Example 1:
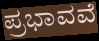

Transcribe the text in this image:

ಪ್ರಭಾವವೆ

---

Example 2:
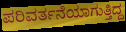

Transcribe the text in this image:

ಪರಿವರ್ತನೆಯಾಗುತ್ತಿದ್ದ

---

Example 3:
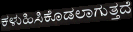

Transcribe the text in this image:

ಕಳುಹಿಸಿಕೊಡಲಾಗುತ್ತದೆ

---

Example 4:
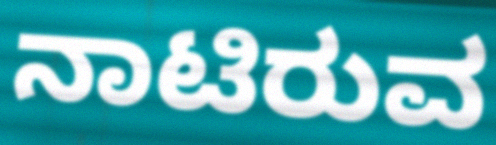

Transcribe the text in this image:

ನಾಟಿರುವ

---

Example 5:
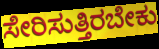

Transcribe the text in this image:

ಸೇರಿಸುತ್ತಿರಬೇಕು